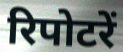
रिपोटरें